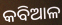
କବିଆଳ